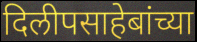
दिलीपसाहेबांच्या